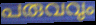
പരുവവും